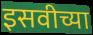
इसवीच्या